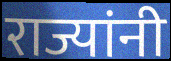
राज्यांनी